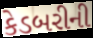
કેડબરીની